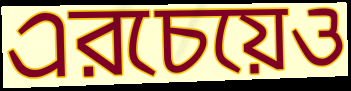
এরচেয়েও